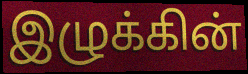
இழுக்கின்